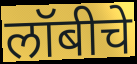
लॉबीचे